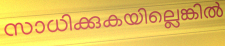
സാധിക്കുകയില്ലെങ്കിൽ